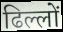
ढिल्लों